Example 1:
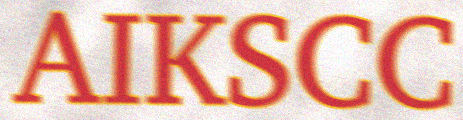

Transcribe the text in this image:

AIKSCC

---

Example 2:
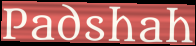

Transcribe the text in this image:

Padshah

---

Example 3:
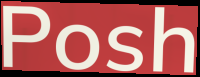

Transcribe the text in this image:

Posh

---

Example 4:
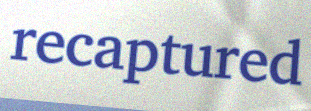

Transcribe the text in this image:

recaptured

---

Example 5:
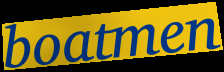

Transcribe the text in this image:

boatmen